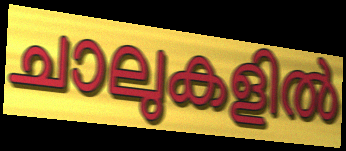
ചാലുകളിൽ